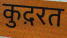
कुद़रत